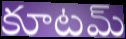
కూటమ్